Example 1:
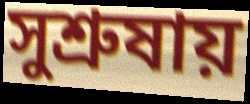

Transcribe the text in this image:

সুশ্রুষায়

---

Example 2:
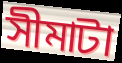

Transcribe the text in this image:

সীমাটা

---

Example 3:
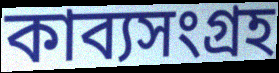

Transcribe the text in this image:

কাব্যসংগ্রহ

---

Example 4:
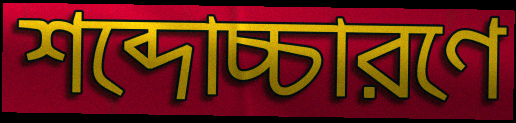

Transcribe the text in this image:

শব্দোচ্চারণে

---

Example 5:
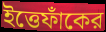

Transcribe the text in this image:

ইত্তেফাঁকের